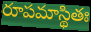
రూపమాస్థితః